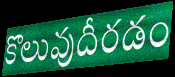
కొలువుదీరడం